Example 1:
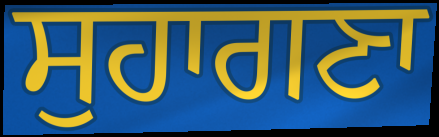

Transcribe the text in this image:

ਸੁਹਾਗਣਾ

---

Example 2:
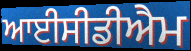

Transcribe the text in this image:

ਆਈਸੀਡੀਐਮ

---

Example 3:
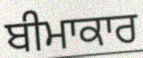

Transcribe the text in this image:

ਬੀਮਾਕਾਰ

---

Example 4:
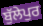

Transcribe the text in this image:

ਬੁੱਲੇਪੁਰ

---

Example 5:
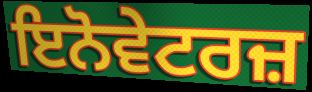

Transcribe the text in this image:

ਇਨੋਵੇਟਰਜ਼